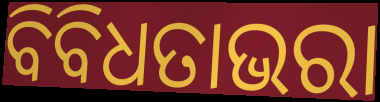
ବିବିଧତାଭରା